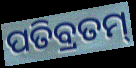
ପତିବ୍ରତମ୍